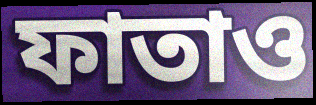
ফাতাও